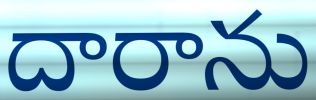
దారాను